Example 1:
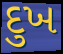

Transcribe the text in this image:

દુખ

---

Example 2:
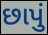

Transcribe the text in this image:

છાપું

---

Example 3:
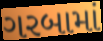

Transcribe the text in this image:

ગરબામાં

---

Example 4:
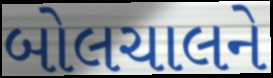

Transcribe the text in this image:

બોલચાલને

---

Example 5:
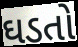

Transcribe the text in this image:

ઘડતો